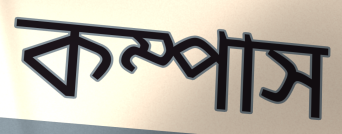
কম্পাস